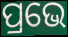
ପ୍ରଭେ